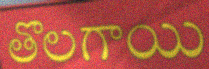
తొలగాయి